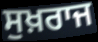
ਸੁਖ਼ਰਾਜ